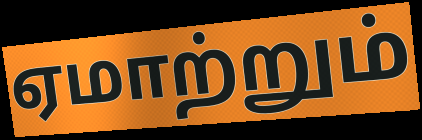
ஏமாற்றும்